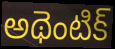
అథెంటిక్